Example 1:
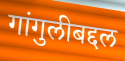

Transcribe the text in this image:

गांगुलीबद्दल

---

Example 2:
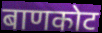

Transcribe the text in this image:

बाणकोट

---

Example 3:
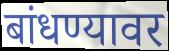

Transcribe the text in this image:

बांधण्यावर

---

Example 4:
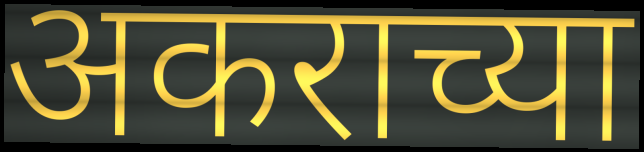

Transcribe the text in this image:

अकराच्या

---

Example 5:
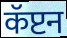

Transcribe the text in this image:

कॅप्टन